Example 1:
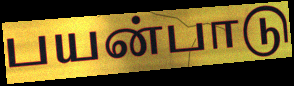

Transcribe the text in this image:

பயன்பாடு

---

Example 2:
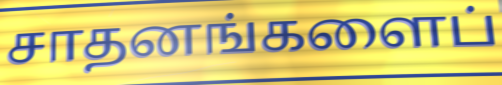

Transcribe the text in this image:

சாதனங்களைப்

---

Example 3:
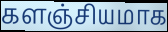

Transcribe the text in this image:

களஞ்சியமாக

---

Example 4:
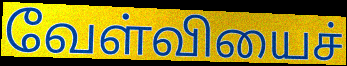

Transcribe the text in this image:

வேள்வியைச்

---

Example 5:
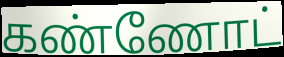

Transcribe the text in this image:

கண்ணோட்